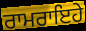
ਰਾਮਰਾਇਹੇ